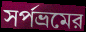
সর্পভ্রমের